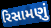
રિસામણું